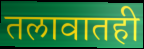
तलावातही